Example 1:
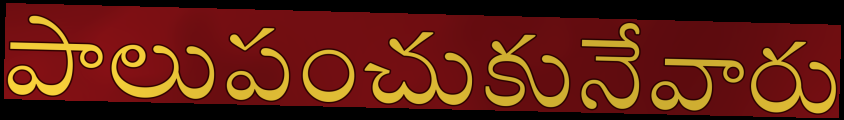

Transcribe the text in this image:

పాలుపంచుకునేవారు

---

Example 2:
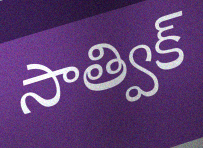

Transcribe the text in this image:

సాత్విక్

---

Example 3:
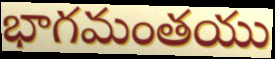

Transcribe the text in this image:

భాగమంతయు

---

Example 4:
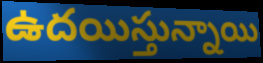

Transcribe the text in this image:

ఉదయిస్తున్నాయి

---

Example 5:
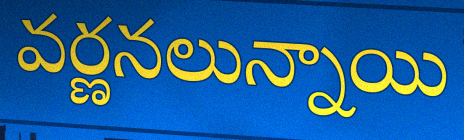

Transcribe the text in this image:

వర్ణనలున్నాయి